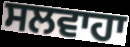
ਸਲਵਾਹਾ